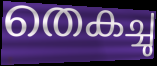
തെകച്ചു